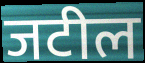
जटील